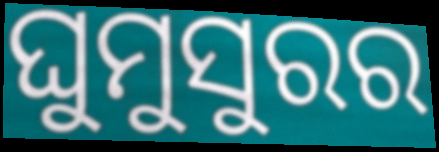
ଘୁମୁସୁରର